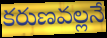
కరుణవల్లనే